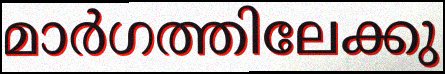
മാർഗത്തിലേക്കു